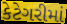
કેટેગરીમાં